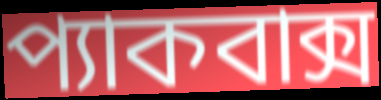
প্যাকবাক্স